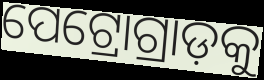
ପେଟ୍ରୋଗ୍ରାଡ଼କୁ